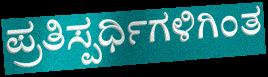
ಪ್ರತಿಸ್ಪರ್ಧಿಗಳಿಗಿಂತ